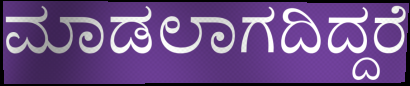
ಮಾಡಲಾಗದಿದ್ದರೆ